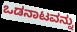
ಒಡನಾಟವನ್ನು